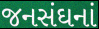
જનસંઘનાં